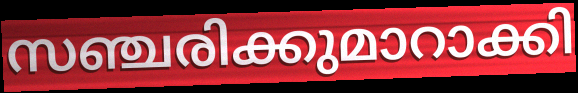
സഞ്ചരിക്കുമാറാക്കി